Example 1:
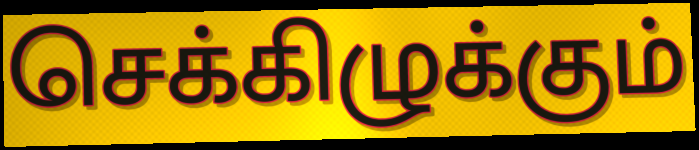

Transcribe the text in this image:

செக்கிழுக்கும்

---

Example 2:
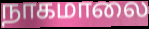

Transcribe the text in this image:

நாகமாலை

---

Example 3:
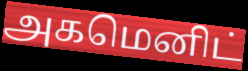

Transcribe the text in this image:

அகமெனிட்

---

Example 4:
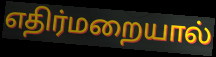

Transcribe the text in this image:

எதிர்மறையால்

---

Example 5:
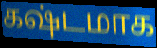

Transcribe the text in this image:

கஷ்டமாக